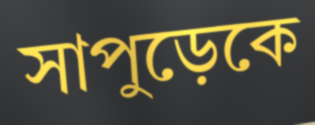
সাপুড়েকে